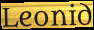
Leonid